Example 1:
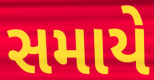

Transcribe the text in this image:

સમાયે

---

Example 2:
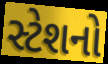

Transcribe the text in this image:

સ્ટેશનો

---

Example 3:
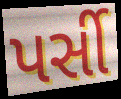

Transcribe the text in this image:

પર્સી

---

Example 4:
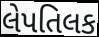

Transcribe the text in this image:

લેપતિલક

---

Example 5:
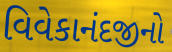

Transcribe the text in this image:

વિવેકાનંદજીનો